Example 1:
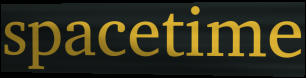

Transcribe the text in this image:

spacetime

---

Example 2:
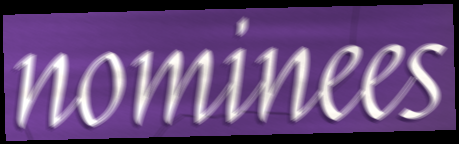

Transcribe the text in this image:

nominees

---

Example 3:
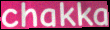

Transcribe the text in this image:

chakka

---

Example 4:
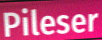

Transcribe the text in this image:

Pileser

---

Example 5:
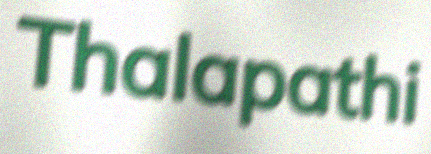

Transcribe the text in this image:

Thalapathi